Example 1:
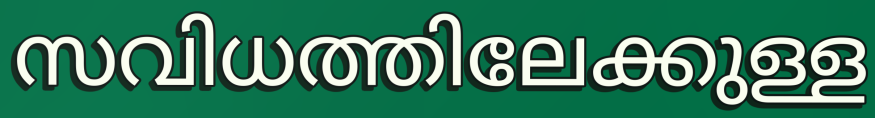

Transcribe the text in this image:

സവിധത്തിലേക്കുള്ള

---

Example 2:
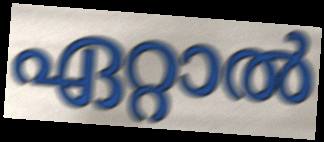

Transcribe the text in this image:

ഏറ്റാൽ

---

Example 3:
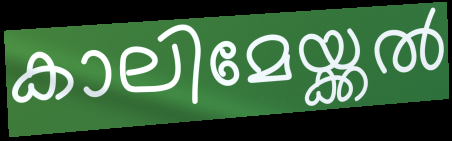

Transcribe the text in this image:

കാലിമേയ്ക്കൽ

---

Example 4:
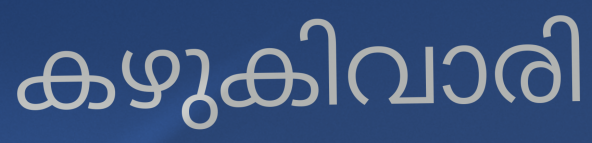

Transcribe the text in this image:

കഴുകിവാരി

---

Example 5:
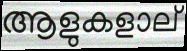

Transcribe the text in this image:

ആളുകളാല്